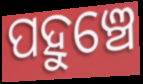
ପହୁଞ୍ଚେ